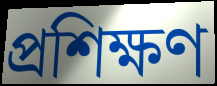
প্রশিক্ষণ